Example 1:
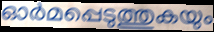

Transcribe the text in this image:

ഓർമപ്പെടുത്തുകയും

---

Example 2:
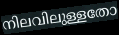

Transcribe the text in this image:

നിലവിലുള്ളതോ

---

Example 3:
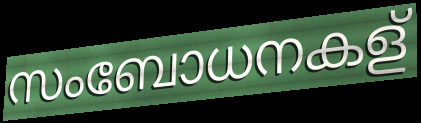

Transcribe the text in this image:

സംബോധനകള്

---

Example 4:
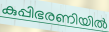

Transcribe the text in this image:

കുപ്പിഭരണിയിൽ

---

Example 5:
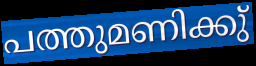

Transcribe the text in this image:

പത്തുമണിക്കു്